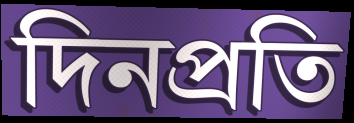
দিনপ্রতি